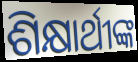
ଶିକ୍ଷାର୍ଥୀଙ୍କ